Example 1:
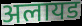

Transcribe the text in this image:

अलायड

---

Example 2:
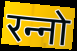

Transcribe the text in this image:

रन्नो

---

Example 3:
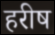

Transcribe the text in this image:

हरीष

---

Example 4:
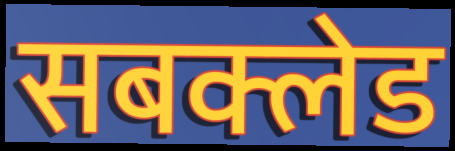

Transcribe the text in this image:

सबक्लेड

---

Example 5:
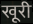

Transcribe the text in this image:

खूरी